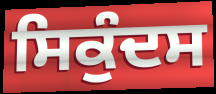
ਸਿਕੁੰਦਸ